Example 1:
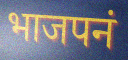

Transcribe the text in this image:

भाजपनं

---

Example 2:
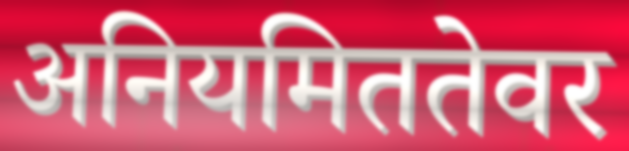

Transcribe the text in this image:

अनियमिततेवर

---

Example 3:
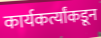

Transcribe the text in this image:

कार्यकर्त्यांकडून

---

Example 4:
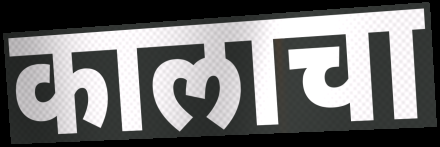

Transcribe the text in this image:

कालाचा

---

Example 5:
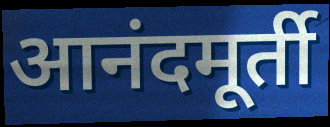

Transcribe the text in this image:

आनंदमूर्ती